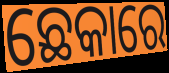
ଛେକାରେ